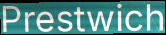
Prestwich